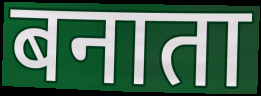
बनाता